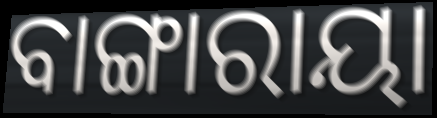
ବାଙ୍ଗାରାୟା